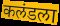
कलंडला